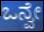
ಒನ್ವೇ